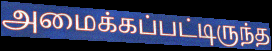
அமைக்கப்பட்டிருந்த